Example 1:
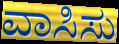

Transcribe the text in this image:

ವಾಸಿಸು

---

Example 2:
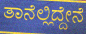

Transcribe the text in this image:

ತಾನೆಲ್ಲಿದ್ದೇನೆ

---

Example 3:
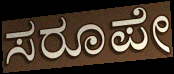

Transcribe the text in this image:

ಸರೂಪೇ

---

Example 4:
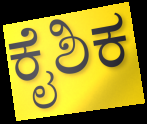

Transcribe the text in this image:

ಕೈಶಿಕ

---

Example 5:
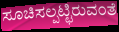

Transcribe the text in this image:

ಸೂಚಿಸಲ್ಪಟ್ಟಿರುವಂತೆ